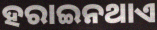
ହରାଇନଥାଏ